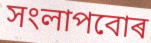
সংলাপবোৰ